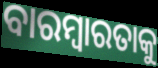
ବାରମ୍ବାରତାକୁ